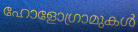
ഹോളോഗ്രാമുകൾ